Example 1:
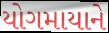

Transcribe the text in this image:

યોગમાયાને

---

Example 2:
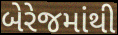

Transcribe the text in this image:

બેરેજમાંથી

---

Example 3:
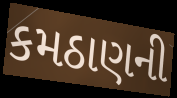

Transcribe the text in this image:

કમઠાણની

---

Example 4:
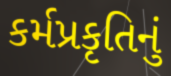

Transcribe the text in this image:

કર્મપ્રકૃતિનું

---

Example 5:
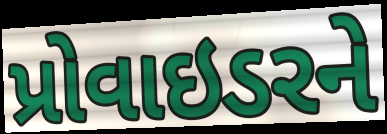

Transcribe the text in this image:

પ્રોવાઇડરને